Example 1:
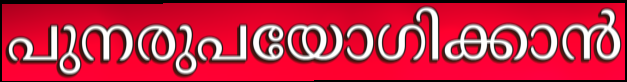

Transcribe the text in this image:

പുനരുപയോഗിക്കാൻ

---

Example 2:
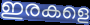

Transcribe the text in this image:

ഇരകളെ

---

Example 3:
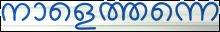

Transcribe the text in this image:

നാളെത്തന്നെ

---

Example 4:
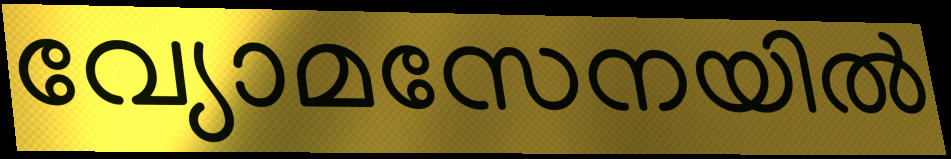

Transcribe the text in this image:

വ്യോമസേനയിൽ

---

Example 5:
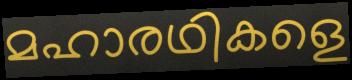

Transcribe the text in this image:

മഹാരഥികളെ